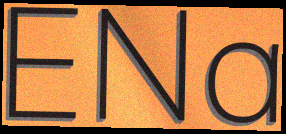
ENa